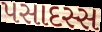
પસાદસ્સ